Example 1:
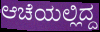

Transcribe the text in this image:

ಆಚೆಯಲ್ಲಿದ್ದ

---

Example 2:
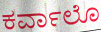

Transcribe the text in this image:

ಕರ್ವಾಲೊ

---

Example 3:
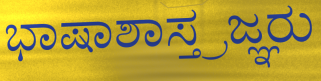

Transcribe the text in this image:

ಭಾಷಾಶಾಸ್ತ್ರಜ್ಞರು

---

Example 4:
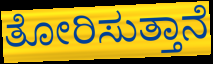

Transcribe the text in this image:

ತೋರಿಸುತ್ತಾನೆ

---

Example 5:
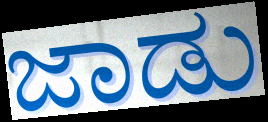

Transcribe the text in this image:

ಜಾಡು